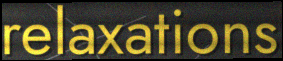
relaxations